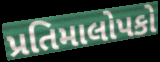
પ્રતિમાલોપકો